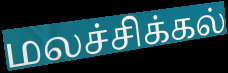
மலச்சிக்கல்